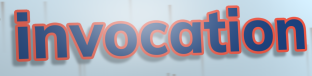
invocation